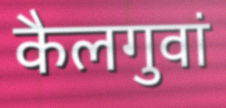
कैलगुवां